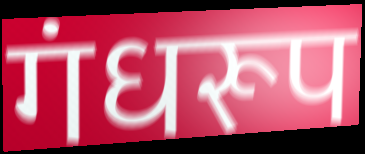
गंधरूप